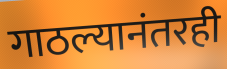
गाठल्यानंतरही